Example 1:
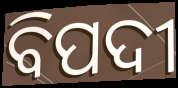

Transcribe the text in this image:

ବିପଦୀ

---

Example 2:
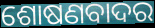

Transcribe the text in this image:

ଶୋଷଣବାଦର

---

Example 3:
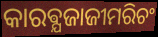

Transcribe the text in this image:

କାରଵ୍ଯଜାଜୀମରିଚଂ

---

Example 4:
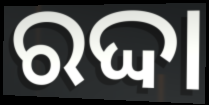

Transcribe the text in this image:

ରଦ୍ଦା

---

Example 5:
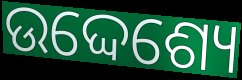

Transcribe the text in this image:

ଉଦ୍ଦେଶ୍ୟେ